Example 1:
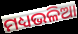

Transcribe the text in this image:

ମଧ୍ୟଭଳିଆ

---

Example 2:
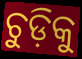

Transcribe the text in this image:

ଚୁଡ଼ିକୁ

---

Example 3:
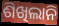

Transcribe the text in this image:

ଶିଖିଲାନି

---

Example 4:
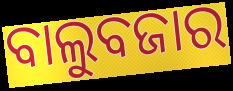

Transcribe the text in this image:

ବାଲୁବଜାର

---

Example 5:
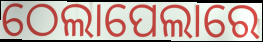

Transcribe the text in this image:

ଠେଲାପେଲାରେ